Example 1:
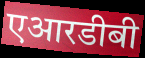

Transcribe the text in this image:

एआरडीबी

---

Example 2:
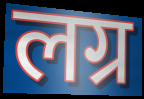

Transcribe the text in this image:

लग्र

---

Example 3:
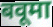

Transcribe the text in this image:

बवूमा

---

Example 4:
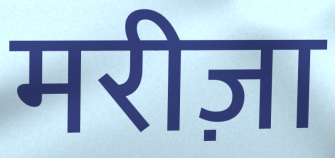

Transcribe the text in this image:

मरीज़ा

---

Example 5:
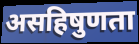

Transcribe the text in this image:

असहिषुणता